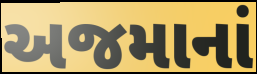
અજમાનાં